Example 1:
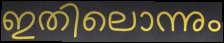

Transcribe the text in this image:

ഇതിലൊന്നും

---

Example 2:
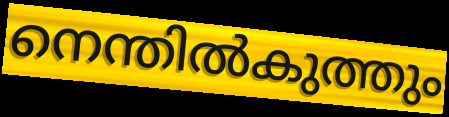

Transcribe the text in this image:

നെന്തിൽകുത്തും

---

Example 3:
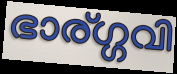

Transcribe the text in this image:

ഭാര്ഗ്ഗവി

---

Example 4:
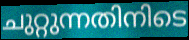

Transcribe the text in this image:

ചുറ്റുന്നതിനിടെ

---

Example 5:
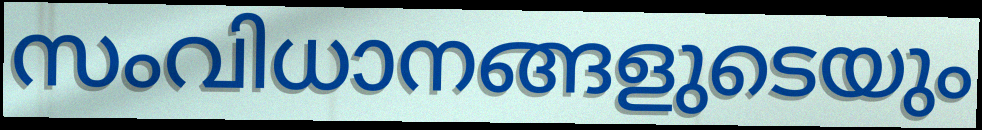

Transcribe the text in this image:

സംവിധാനങ്ങളുടെയും